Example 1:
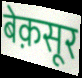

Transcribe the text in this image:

बेक़सूर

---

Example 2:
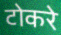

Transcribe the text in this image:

टोकरे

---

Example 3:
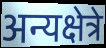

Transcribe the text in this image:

अन्यक्षेत्रे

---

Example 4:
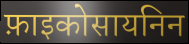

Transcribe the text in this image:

फ़ाइकोसायनिन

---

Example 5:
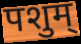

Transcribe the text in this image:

पशुम्